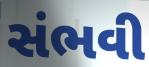
સંભવી